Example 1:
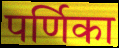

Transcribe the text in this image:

पर्णिका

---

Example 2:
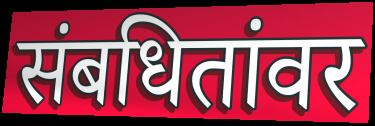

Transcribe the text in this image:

संबधितांवर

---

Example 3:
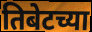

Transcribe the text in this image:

तिबेटच्या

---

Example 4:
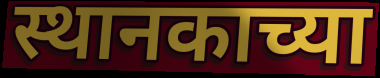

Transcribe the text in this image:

स्थानकाच्या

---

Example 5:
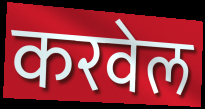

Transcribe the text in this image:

करवेल